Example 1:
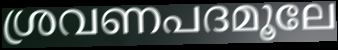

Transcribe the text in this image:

ശ്രവണപദമൂലേ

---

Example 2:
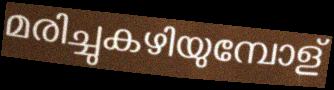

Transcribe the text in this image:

മരിച്ചുകഴിയുമ്പോള്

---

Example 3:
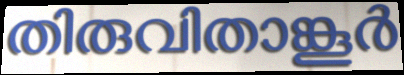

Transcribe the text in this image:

തിരുവിതാങ്കൂർ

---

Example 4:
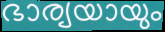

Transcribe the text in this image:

ഭാര്യയായും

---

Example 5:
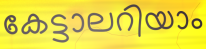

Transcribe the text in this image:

കേട്ടാലറിയാം